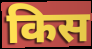
किस